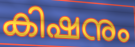
കിഷനും